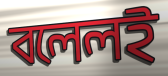
বলেলই